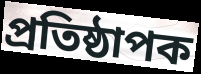
প্ৰতিষ্ঠাপক